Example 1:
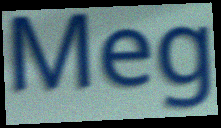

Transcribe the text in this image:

Meg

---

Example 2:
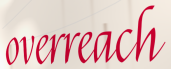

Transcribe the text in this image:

overreach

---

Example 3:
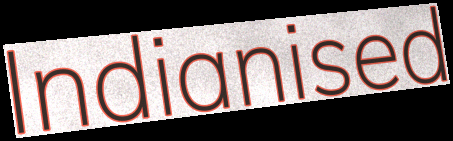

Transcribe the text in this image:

Indianised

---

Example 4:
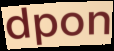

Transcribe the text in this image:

dpon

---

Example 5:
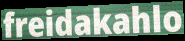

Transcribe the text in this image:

freidakahlo